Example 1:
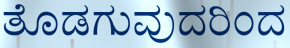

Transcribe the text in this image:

ತೊಡಗುವುದರಿಂದ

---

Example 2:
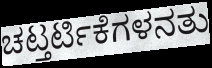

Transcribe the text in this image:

ಚಟ್ತರ್ಟಿಕೆಗಳನತು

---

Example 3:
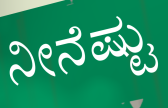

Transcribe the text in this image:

ನೀನೆಷ್ಟು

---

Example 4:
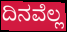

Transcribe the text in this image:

ದಿನವೆಲ್ಲ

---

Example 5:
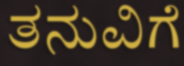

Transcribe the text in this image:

ತನುವಿಗೆ